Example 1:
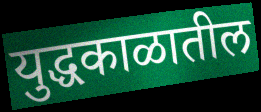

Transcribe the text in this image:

युद्धकाळातील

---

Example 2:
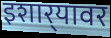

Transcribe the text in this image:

इशार्‍यावर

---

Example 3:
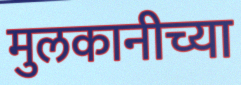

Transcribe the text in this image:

मुलकानीच्या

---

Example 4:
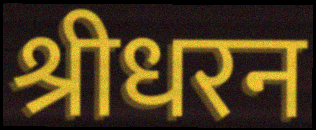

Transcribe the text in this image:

श्रीधरन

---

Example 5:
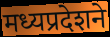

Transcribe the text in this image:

मध्यप्रदेशने